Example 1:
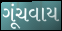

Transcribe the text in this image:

ગૂંચવાય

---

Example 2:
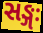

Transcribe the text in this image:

સઙ્ગઃ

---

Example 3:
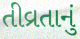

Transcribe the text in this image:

તીવ્રતાનું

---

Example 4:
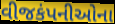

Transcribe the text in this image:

વીજકંપનીઓના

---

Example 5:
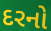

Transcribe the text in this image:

દરનો